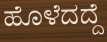
ಹೊಳೆದದ್ದೆ